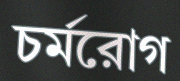
চর্মরোগ